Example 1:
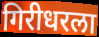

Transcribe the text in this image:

गिरीधरला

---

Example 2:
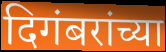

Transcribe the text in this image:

दिगंबरांच्या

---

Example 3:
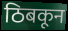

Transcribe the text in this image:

ठिबकून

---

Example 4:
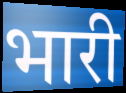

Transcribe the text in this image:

भारी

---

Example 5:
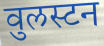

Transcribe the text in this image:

वुलस्टन